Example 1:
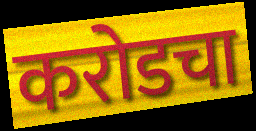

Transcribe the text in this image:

करोडचा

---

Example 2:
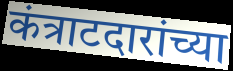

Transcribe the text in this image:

कंत्राटदारांच्या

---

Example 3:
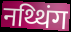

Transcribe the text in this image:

नथ्थिंग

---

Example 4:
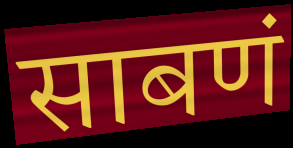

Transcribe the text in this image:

साबणं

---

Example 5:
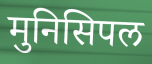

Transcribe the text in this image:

मुनिसिपल